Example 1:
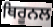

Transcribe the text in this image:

ਥਿਰੂਨਲ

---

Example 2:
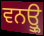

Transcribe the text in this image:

ਵਨਊ੍ਨ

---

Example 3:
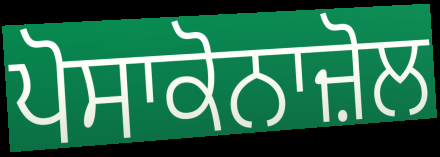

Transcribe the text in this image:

ਪੋਸਾਕੋਨਾਜ਼ੋਲ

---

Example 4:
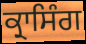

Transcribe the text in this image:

ਕ੍ਰਾਸਿੰਗ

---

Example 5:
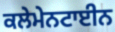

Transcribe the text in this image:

ਕਲੇਮੇਨਟਾਈਨ